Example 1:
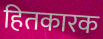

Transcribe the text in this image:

हितकारक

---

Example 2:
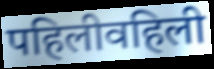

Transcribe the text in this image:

पहिलीवहिली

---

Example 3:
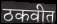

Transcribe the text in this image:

ठकवीत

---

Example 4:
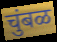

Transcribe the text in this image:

चुंबळ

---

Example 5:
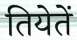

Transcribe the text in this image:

तियेतें